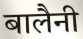
बालैनी